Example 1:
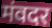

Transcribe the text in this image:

मंवदर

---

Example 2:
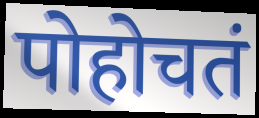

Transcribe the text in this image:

पोहोचतं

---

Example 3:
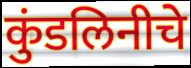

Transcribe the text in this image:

कुंडलिनीचे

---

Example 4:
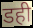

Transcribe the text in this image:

डही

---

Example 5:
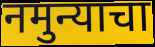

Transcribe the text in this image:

नमुन्याचा